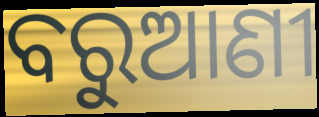
ବରୁଆଣୀ